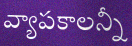
వ్యాపకాలన్నీ